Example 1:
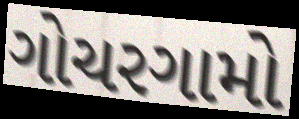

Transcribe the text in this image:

ગોચરગામો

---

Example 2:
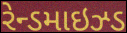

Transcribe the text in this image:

રેન્ડમાઇઝ્ડ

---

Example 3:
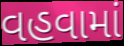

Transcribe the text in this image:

વહવામાં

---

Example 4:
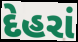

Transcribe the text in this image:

દેહરાં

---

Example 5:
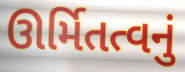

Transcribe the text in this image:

ઊર્મિતત્વનું